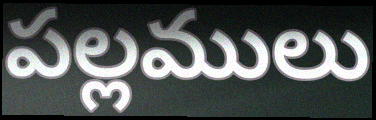
పల్లములు